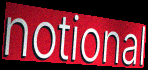
notional